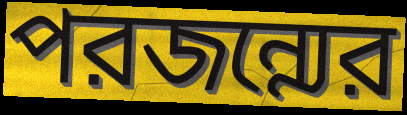
পরজন্মের